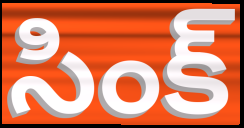
సింక్